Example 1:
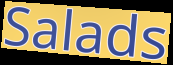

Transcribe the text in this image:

Salads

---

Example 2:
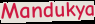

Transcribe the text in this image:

Mandukya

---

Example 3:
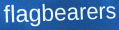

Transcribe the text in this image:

flagbearers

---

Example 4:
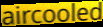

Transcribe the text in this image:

aircooled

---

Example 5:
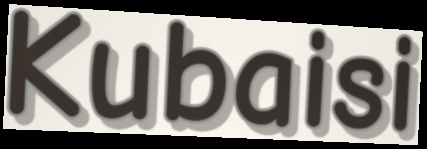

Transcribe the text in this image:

Kubaisi